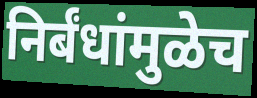
निर्बंधांमुळेच